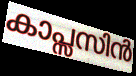
കാപ്സസിൻ